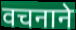
वचनाने